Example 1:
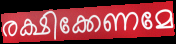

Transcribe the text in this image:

രക്ഷിക്കേണമേ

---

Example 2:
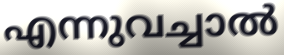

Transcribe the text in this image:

എന്നുവച്ചാൽ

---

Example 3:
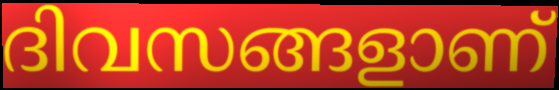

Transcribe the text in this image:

ദിവസങ്ങളാണ്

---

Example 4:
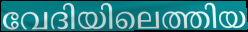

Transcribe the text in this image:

വേദിയിലെത്തിയ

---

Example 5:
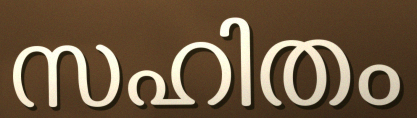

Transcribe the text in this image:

സഹിതം